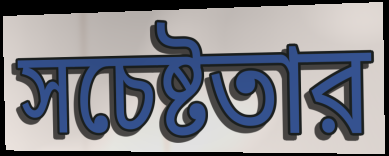
সচেষ্টতার